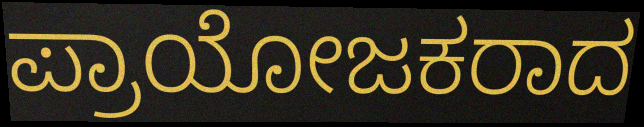
ಪ್ರಾಯೋಜಕರಾದ